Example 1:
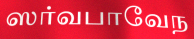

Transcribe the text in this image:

ஸர்வபாவேந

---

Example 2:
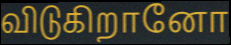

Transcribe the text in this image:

விடுகிறானோ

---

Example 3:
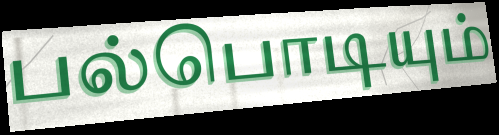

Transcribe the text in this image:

பல்பொடியும்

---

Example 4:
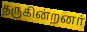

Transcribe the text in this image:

தருகின்றனர்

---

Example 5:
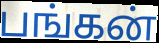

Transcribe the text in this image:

பங்கன்